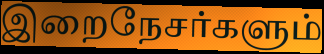
இறைநேசர்களும்